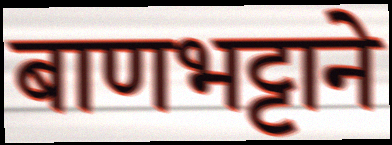
बाणभट्टाने